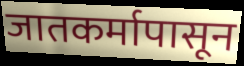
जातकर्मापासून